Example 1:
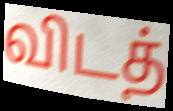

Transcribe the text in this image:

விடத்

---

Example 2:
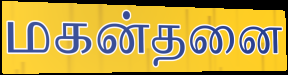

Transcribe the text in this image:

மகன்தனை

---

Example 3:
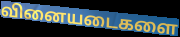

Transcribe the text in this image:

வினையடைகளை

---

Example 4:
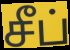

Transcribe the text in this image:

சீப்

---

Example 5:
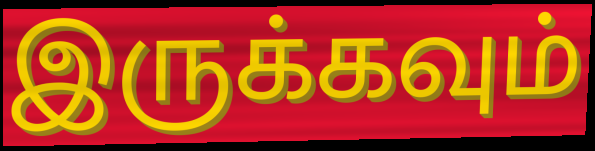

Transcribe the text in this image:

இருக்கவும்